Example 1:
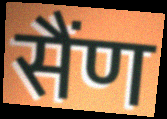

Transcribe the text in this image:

सैंण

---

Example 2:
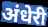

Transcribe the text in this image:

अंधेरी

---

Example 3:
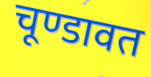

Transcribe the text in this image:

चूण्डावत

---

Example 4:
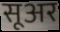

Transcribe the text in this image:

सूअर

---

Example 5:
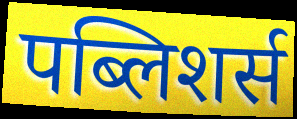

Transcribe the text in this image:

पब्लिशर्स